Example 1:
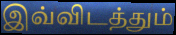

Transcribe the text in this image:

இவ்விடத்தும்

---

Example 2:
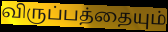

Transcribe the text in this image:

விருப்பத்தையும்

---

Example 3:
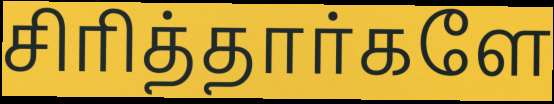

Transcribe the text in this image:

சிரித்தார்களே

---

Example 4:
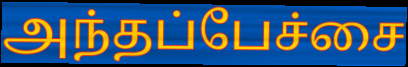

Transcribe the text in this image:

அந்தப்பேச்சை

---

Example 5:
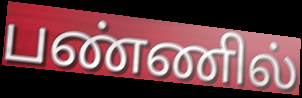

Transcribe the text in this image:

பண்ணில்